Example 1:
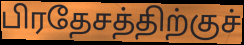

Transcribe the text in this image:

பிரதேசத்திற்குச்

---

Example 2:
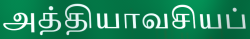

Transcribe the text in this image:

அத்தியாவசியப்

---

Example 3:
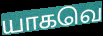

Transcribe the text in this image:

யாகவெ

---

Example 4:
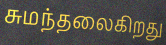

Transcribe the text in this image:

சுமந்தலைகிறது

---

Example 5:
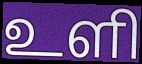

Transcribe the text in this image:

உளி